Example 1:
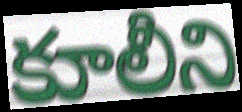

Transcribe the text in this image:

కూలీని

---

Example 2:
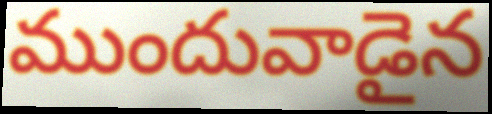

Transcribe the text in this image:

ముందువాడైన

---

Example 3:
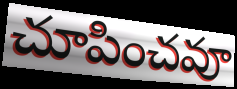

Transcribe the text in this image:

చూపించవూ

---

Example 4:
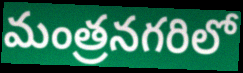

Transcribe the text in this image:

మంత్రనగరిలో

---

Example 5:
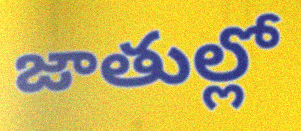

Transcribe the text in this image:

జాతుల్లో